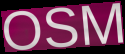
OSM